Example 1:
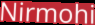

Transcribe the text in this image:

Nirmohi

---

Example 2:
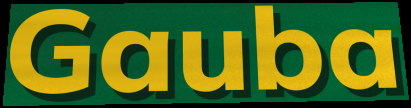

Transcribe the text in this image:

Gauba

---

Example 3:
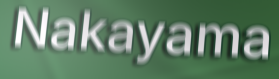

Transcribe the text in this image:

Nakayama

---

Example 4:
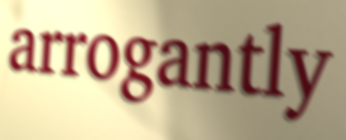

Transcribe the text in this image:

arrogantly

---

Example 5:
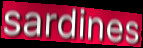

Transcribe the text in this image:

sardines